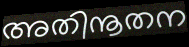
അതിനൂതന